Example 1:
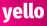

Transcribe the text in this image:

yello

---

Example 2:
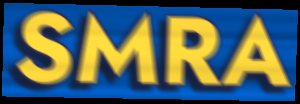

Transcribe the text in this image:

SMRA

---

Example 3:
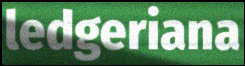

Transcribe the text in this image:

ledgeriana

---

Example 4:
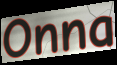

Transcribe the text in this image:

Onna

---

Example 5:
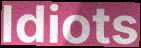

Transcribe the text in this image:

Idiots